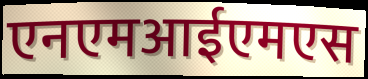
एनएमआईएमएस